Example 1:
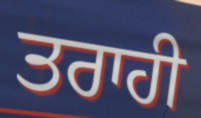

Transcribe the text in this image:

ਤਰਾਹੀ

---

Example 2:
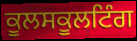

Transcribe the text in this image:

ਕੂਲਸਕੂਲਟਿੰਗ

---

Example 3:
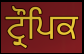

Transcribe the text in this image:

ਟ੍ਰੌਪਿਕ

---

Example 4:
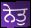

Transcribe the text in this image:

ਨੇਤੁ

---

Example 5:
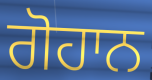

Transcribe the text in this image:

ਗੋਹਾਨ